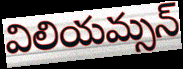
విలియమ్సన్